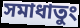
সমাধাতুং